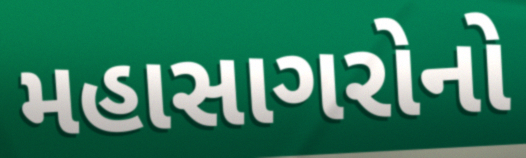
મહાસાગરોનો